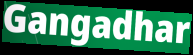
Gangadhar